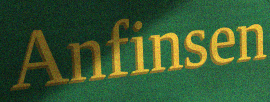
Anfinsen